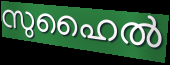
സുഹൈൽ